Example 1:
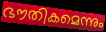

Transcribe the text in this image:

ഭൗതികമെന്നും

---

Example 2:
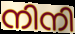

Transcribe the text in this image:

നിനി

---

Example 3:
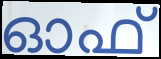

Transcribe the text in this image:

ഓഫ്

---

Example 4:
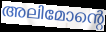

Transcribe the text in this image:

അലിമോന്റെ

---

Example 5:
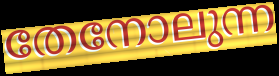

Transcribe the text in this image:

തേനോലുന്ന